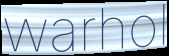
warhol